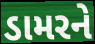
ડામરને